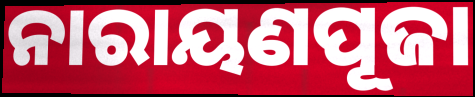
ନାରାୟଣପୂଜା